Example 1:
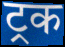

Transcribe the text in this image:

ट्रक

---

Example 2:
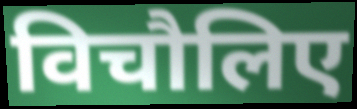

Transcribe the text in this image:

विचौलिए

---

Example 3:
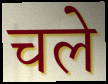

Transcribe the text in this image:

चले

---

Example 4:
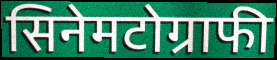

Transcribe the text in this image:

सिनेमटोग्राफी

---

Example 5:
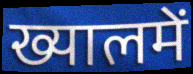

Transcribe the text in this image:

ख्यालमें